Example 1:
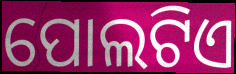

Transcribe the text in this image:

ପୋଲଟିଏ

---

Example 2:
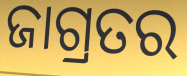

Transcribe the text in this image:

ଜାଗ୍ରତର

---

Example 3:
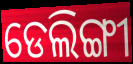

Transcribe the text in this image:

ଡେଲିଙ୍ଗୀ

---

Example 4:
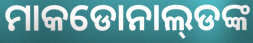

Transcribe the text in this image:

ମାକଡୋନାଲ୍‍ଡଙ୍କ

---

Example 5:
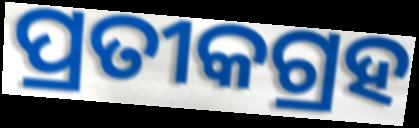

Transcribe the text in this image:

ପ୍ରତୀକଗ୍ରହ